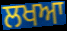
ਲਖਆ